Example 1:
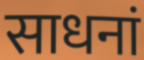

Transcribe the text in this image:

साधनां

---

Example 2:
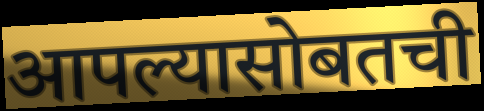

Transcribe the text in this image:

आपल्यासोबतची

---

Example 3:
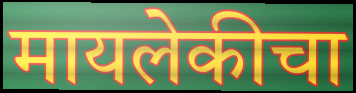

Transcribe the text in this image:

मायलेकीचा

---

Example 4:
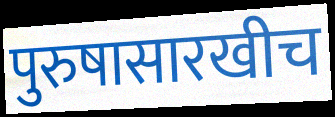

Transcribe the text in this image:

पुरुषासारखीच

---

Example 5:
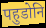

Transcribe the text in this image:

पहुडोनि